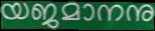
യജമാനനു